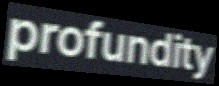
profundity